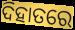
ଦିହାତରେ